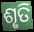
ଶୃତି